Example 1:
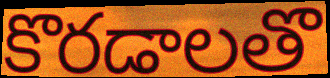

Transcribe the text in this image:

కొరడాలతొ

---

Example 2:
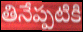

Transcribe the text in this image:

తినేప్పటికి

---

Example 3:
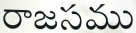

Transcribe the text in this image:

రాజసము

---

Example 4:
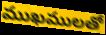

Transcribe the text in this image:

ముఖములతో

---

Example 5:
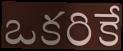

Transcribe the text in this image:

ఒకరికే